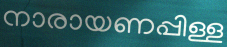
നാരായണപ്പിള്ള